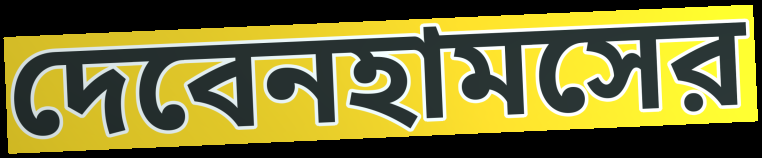
দেবেনহামসের